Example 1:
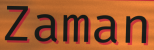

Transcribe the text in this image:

Zaman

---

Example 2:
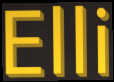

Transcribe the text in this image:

Elli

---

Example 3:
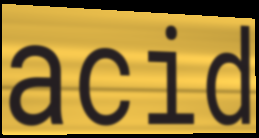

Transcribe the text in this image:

acid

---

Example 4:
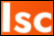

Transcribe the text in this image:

Isc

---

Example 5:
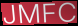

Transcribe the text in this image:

JMFC